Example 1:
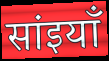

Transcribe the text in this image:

सांइयाँ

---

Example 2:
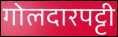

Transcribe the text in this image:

गोलदारपट्टी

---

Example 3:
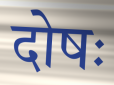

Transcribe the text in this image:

दोषः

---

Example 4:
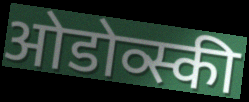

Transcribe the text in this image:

ओडोव्स्की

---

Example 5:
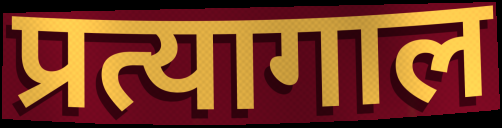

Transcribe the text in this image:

प्रत्यागाल